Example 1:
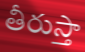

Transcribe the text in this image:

తీరుస్తా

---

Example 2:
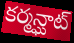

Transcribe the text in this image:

కర్మన్ఘాట్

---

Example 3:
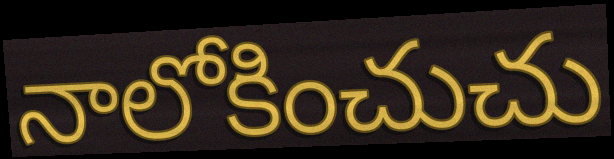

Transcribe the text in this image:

నాలోకించుచు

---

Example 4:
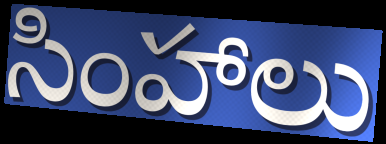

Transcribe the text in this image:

సింహాలు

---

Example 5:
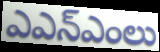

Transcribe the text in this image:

ఎఎన్ఎంలు